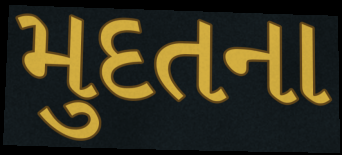
મુદતના